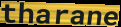
tharane